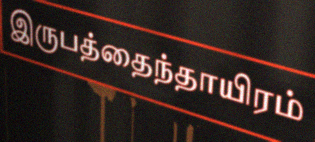
இருபத்தைந்தாயிரம்